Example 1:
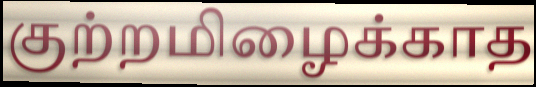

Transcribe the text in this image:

குற்றமிழைக்காத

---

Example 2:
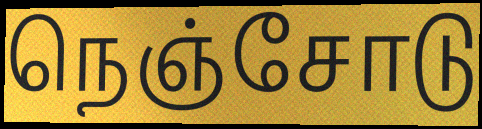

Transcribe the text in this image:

நெஞ்சோடு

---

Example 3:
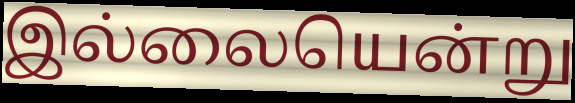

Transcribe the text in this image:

இல்லையென்று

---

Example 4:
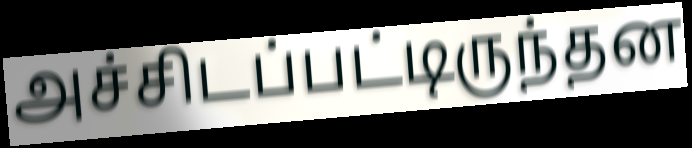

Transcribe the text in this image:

அச்சிடப்பட்டிருந்தன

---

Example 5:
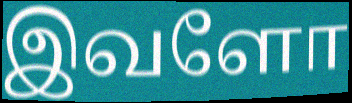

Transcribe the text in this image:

இவளோ